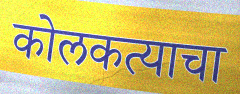
कोलकत्याचा